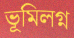
ভূমিলগ্ন